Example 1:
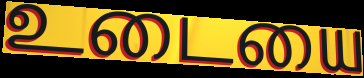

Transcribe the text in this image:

உடையை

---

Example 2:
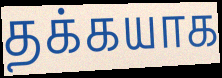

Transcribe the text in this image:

தக்கயாக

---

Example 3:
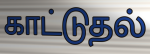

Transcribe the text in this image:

காட்டுதல்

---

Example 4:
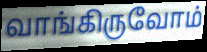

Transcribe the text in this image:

வாங்கிருவோம்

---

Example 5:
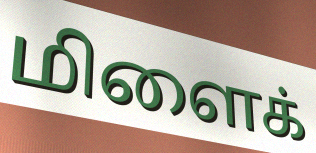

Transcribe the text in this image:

மிளைக்